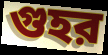
গুহর